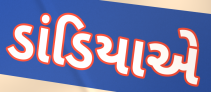
ડાંડિયાએ